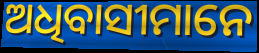
ଅଧିବାସୀମାନେ